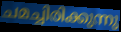
ചമച്ചിരിക്കുന്നു